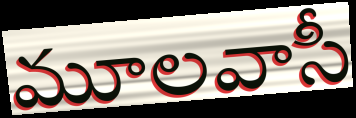
మూలవాసీ